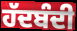
ਹੱਦਬੰਦੀ